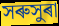
সৰুসুৰা